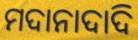
ମଦାନାଦାଦି